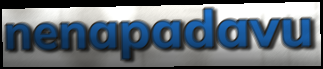
nenapadavu